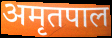
अमृतपाल